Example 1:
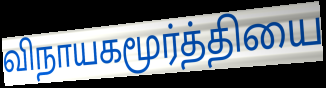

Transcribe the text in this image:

விநாயகமூர்த்தியை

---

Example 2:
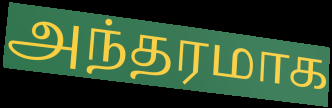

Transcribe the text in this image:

அந்தரமாக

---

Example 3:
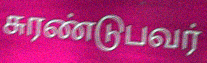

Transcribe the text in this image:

சுரண்டுபவர்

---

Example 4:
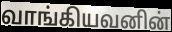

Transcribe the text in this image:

வாங்கியவனின்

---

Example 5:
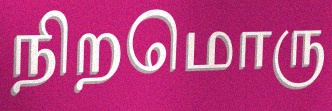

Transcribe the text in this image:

நிறமொரு